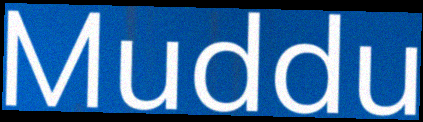
Muddu